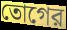
তোগের